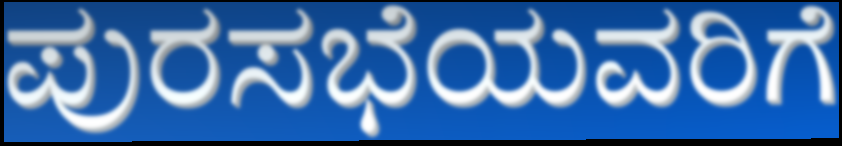
ಪುರಸಭೆಯವರಿಗೆ